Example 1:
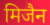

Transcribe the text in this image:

मिजैन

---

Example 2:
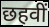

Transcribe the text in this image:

छहवीं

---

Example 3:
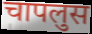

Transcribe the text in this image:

चापलुस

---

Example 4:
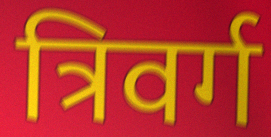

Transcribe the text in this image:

त्रिवर्ग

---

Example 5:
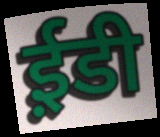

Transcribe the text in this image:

ई़डी